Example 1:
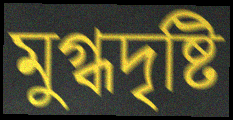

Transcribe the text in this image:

মুগ্ধদৃষ্টি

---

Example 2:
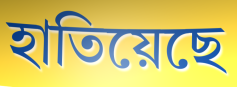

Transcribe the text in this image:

হাতিয়েছে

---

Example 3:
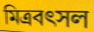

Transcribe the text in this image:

মিত্রবৎসল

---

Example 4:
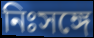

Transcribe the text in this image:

নিঃসঙ্গে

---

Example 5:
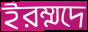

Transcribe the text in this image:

ইরম্মদে